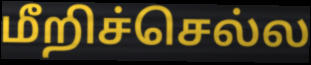
மீறிச்செல்ல